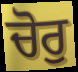
ਚੋਰੁ